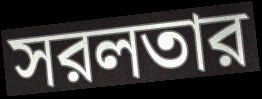
সরলতার